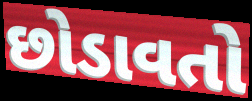
છોડાવતો